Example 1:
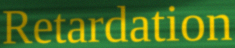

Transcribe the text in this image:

Retardation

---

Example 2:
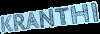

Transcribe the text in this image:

KRANTHI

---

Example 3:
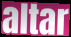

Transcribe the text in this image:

altar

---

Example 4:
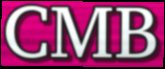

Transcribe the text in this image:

CMB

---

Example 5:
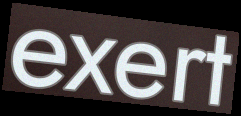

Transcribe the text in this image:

exert